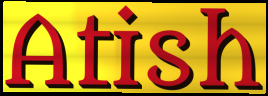
Atish